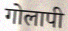
गोलापी